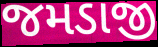
જમડાજી